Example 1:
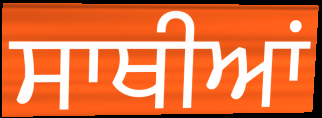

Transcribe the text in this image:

ਸਾਥੀਆਂ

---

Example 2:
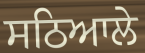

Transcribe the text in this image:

ਸਠਿਆਲੇ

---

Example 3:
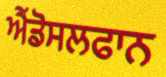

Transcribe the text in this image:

ਐਂਡੋਸਲਫਾਨ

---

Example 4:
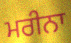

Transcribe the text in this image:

ਮਰੀਨਾ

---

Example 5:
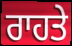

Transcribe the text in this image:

ਰਾਹਤੇ